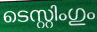
ടെസ്റ്റിംഗും